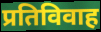
प्रतिविवाह